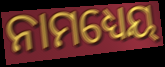
ନାମଧ୍ୟେୟ